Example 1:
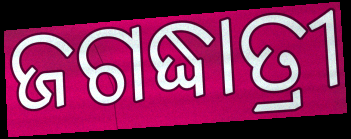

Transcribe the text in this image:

ଜଗଦ୍ଧାତ୍ରୀ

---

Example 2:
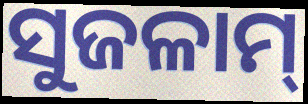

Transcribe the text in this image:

ସୁଜଳାମ୍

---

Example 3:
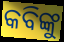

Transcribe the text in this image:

କବିଙ୍କୁ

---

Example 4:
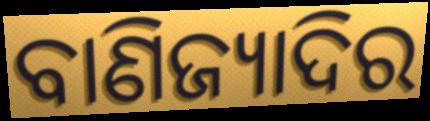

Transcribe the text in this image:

ବାଣିଜ୍ୟାଦିର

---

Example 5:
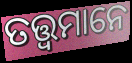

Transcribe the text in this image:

ତତ୍ତ୍ବମାନେ